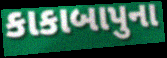
કાકાબાપુના